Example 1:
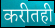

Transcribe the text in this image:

करीतही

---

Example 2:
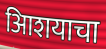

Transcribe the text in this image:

आिशयाचा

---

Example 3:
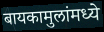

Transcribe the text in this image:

बायकामुलांमध्ये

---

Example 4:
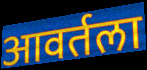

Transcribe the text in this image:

आवर्तला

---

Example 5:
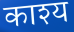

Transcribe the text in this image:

काश्य